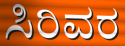
ಸಿರಿವರ